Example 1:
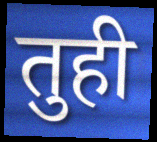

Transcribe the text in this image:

तुही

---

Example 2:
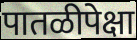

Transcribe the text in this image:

पातळीपेक्षा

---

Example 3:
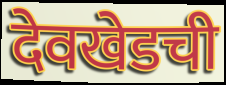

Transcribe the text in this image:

देवखेडची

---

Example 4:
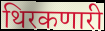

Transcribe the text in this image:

थिरकणारी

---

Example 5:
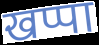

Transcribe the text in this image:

खप्पा